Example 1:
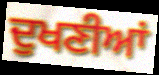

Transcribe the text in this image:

ਦੁਖਣੀਆਂ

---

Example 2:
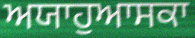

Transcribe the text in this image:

ਅਯਾਹੁਆਸਕਾ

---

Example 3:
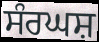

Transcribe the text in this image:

ਸੰਰਘਸ਼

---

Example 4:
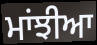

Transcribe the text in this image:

ਮਾਂਝੀਆ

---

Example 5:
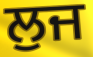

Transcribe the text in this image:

ਲੁਜ